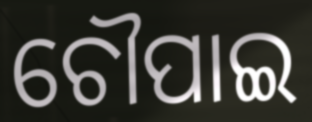
ଚୌପାଇ